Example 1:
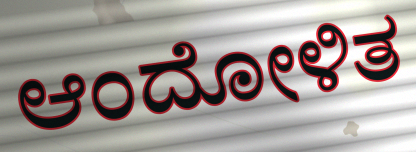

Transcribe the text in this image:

ಆಂದೋಳಿತ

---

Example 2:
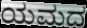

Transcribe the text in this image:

ಯಮದ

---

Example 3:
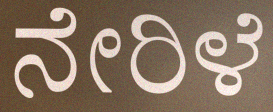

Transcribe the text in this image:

ನೇರಿಳೆ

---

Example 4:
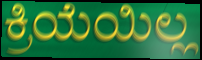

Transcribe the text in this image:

ಕ್ರಿಯೆಯಿಲ್ಲ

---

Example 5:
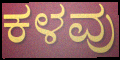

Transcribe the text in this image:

ಕಳವು